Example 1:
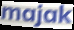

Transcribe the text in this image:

majak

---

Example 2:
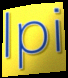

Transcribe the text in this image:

lpi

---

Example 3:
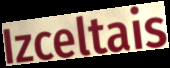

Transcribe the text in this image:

Izceltais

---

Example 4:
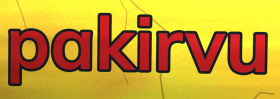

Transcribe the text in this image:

pakirvu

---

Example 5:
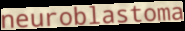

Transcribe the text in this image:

neuroblastoma